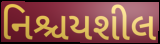
નિશ્ચયશીલ